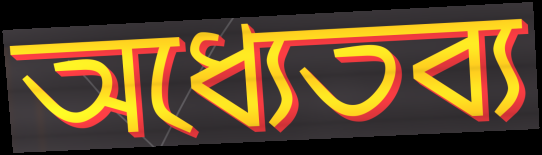
অধ্যেতব্য